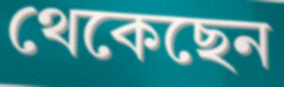
থেকেছেন